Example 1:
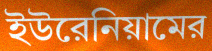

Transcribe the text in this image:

ইউরেনিয়ামের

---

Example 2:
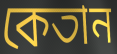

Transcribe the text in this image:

কেতান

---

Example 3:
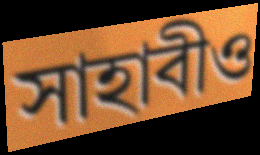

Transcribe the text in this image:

সাহাবীও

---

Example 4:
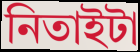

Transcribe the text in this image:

নিতাইটা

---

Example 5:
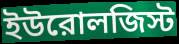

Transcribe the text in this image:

ইউরোলজিস্ট